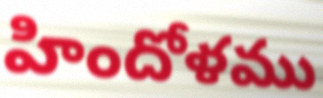
హిందోళము